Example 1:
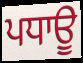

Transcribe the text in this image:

ਪਧਾਊ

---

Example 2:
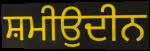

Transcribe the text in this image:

ਸ਼ਮੀਉਦੀਨ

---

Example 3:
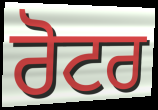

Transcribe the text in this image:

ਰੋਟਰ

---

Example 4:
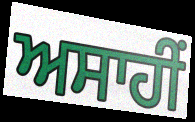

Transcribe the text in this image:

ਅਸਾਹੀਂ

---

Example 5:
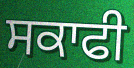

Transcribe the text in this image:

ਸਕਾਫੀ